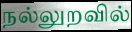
நல்லுறவில்